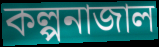
কল্পনাজাল